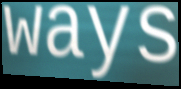
ways